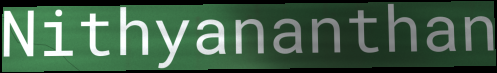
Nithyananthan